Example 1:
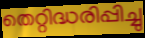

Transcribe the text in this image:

തെറ്റിദ്ധരിപ്പിച്ചു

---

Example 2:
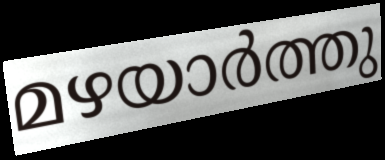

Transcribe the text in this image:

മഴയാർത്തു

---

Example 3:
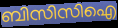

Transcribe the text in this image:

ബിസിസിഐ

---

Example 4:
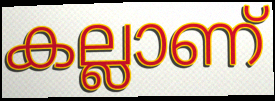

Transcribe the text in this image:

കല്ലാണ്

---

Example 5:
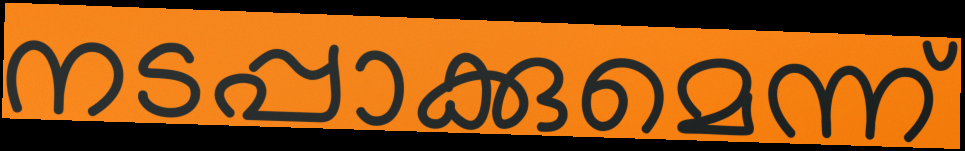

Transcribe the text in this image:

നടപ്പാക്കുമെന്ന്